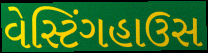
વેસ્ટિંગહાઉસ